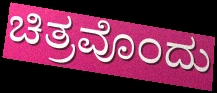
ಚಿತ್ರವೊಂದು